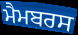
ਮੈਮਬਰਸ